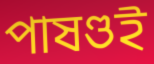
পাষণ্ডই